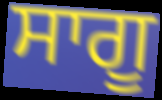
ਸਾਗੂ